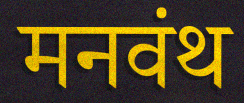
मनवंथ